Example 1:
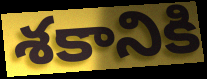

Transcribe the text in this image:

శకానికి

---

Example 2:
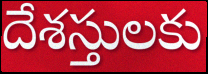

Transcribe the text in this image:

దేశస్తులకు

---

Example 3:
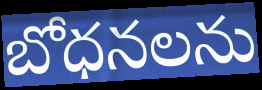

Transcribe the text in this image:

బోధనలను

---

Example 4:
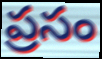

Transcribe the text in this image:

ప్రసం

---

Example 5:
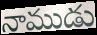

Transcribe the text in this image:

నాముడు